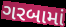
ગરબામાં